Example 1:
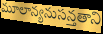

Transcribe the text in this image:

మూలాన్యనుసన్తతాని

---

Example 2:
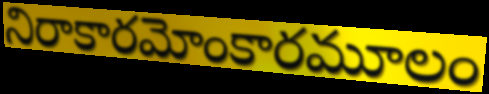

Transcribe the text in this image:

నిరాకారమోంకారమూలం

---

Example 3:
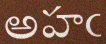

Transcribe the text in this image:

అహఁ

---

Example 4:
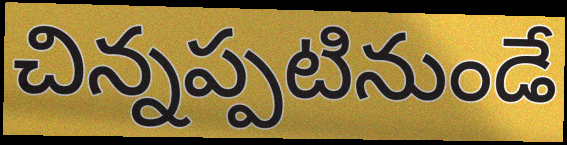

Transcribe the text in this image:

చిన్నప్పటినుండే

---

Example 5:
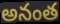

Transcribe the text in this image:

అనంత